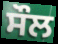
ਸੌਲ